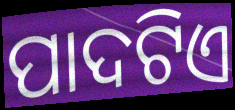
ପାଦଟିଏ